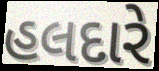
હલદારે